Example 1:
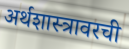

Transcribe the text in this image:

अर्थशास्त्रावरची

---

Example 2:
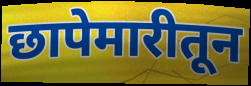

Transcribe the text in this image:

छापेमारीतून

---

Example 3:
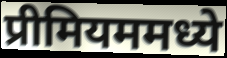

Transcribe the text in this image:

प्रीमियममध्ये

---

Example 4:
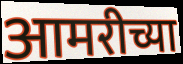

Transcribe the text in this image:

आमरीच्या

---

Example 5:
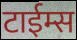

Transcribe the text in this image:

टाईम्स